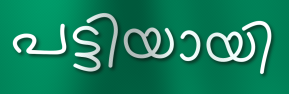
പട്ടിയായി